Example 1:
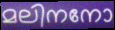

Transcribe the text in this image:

മലിനനോ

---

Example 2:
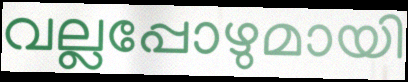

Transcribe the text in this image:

വല്ലപ്പോഴുമായി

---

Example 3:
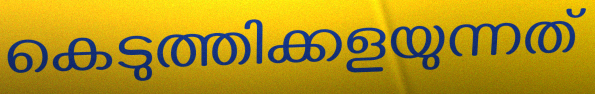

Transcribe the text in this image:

കെടുത്തിക്കളയുന്നത്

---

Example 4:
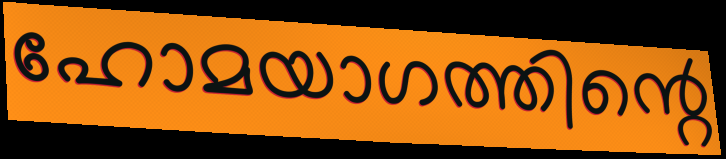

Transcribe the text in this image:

ഹോമയാഗത്തിന്റെ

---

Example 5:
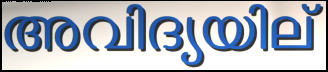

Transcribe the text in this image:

അവിദ്യയില്